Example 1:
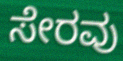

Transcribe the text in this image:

ಸೇರವು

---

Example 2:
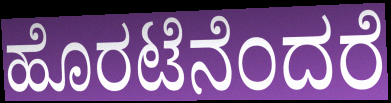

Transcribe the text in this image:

ಹೊರಟೆನೆಂದರೆ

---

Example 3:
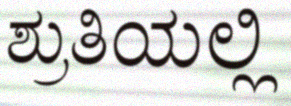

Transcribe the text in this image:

ಶ್ರುತಿಯಲ್ಲಿ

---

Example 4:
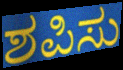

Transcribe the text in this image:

ಶಪಿಸು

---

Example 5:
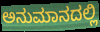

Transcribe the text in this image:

ಅನುಮಾನದಲ್ಲಿ